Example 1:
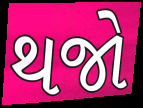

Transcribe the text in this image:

થજો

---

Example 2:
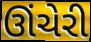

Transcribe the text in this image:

ઊંચેરી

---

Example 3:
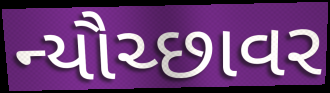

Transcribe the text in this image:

ન્યૌચ્છાવર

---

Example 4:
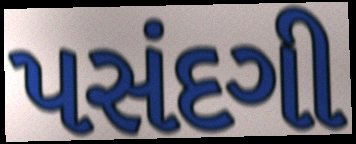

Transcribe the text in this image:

પસંદગી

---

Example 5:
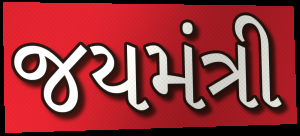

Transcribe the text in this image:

જયમંત્રી